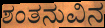
ಶಂತನುವಿನ